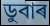
ডুবাৰ